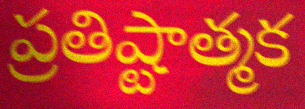
ప్రతిష్టాత్మక